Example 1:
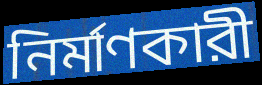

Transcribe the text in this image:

নির্মাণকারী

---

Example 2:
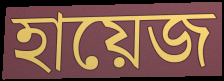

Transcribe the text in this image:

হায়েজ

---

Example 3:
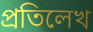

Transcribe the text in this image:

প্রতিলেখ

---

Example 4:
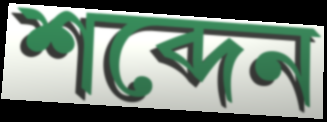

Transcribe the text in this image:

শব্দেন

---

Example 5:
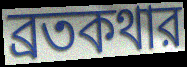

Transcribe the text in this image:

ব্রতকথার